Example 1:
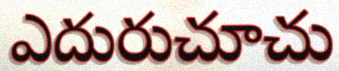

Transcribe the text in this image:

ఎదురుచూచు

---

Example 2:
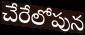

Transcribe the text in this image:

చేరేలోపున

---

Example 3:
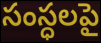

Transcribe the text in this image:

సంస్ధలపై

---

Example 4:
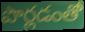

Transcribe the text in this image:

పొర్లడంతో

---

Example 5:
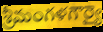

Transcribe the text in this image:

శ్రీమంగళగౌర్యై